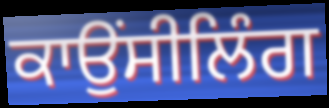
ਕਾਉਂਸੀਲਿੰਗ